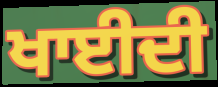
ਖਾਈਦੀ